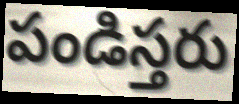
పండిస్తరు